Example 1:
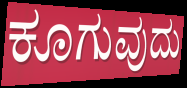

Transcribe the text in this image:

ಕೂಗುವುದು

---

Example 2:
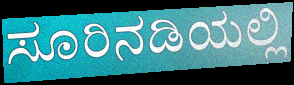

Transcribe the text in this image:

ಸೂರಿನಡಿಯಲ್ಲಿ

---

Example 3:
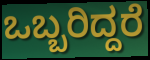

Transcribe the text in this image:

ಒಬ್ಬರಿದ್ದರೆ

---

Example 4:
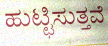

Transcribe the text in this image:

ಹುಟ್ಟಿಸುತ್ತವೆ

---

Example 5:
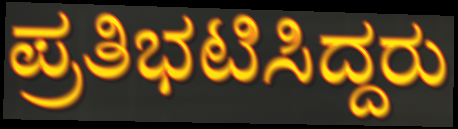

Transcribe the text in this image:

ಪ್ರತಿಭಟಿಸಿದ್ದರು